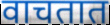
वाचतात